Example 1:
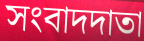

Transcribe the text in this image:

সংবাদদাতা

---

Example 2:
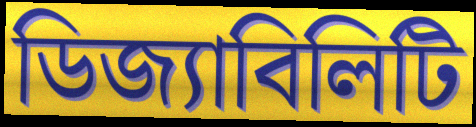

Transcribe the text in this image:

ডিজ্যাবিলিটি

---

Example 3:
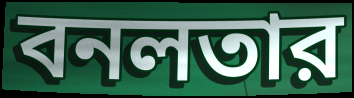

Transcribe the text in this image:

বনলতার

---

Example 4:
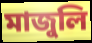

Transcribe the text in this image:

মাজুলি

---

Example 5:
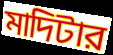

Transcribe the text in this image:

মাদিটার